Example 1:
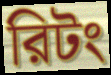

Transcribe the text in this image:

রিটং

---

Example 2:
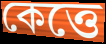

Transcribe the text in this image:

কেত্তে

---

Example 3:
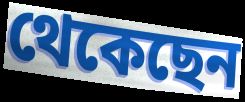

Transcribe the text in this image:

থেকেছেন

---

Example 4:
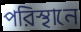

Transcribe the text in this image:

পরিস্থানে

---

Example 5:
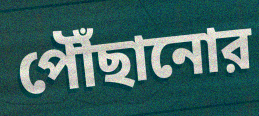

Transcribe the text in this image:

পৌঁছানোর